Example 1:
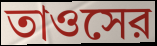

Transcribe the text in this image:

তাওসের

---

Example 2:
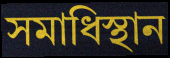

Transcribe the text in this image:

সমাধিস্থান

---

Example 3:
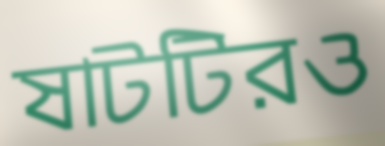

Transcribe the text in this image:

ষাটটিরও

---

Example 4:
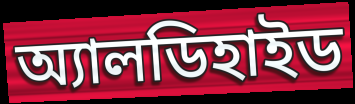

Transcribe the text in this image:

অ্যালডিহাইড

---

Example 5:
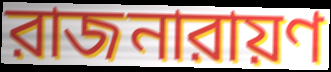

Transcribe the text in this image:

রাজনারায়ণ